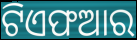
ଟିଏଫଆର